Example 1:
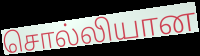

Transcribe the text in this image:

சொல்லியான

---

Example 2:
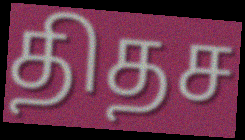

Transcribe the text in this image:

திதச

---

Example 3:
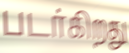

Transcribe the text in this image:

படர்கிறது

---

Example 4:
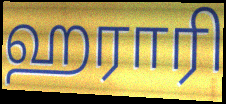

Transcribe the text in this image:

ஹராரி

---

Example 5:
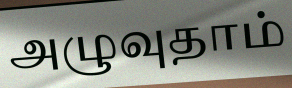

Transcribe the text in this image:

அழுவுதாம்